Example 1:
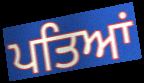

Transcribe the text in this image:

ਪਤਿਆਂ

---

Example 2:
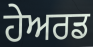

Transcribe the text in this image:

ਹੇਅਰਡ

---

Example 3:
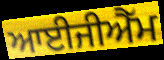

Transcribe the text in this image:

ਆਈਜੀਐੱਮ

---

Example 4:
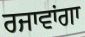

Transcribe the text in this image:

ਰਜਾਵਾਂਗਾ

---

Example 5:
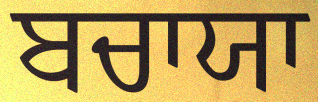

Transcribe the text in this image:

ਬਚਾਯਾ